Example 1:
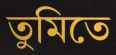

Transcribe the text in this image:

তুমিতে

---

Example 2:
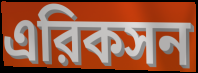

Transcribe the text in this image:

এরিকসন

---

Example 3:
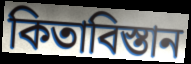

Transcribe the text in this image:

কিতাবিস্তান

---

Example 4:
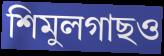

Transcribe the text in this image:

শিমুলগাছও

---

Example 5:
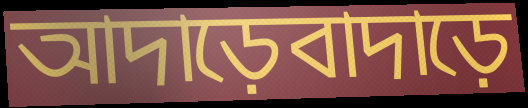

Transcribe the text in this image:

আদাড়েবাদাড়ে